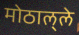
मोठाल्ले